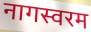
नागस्वरम